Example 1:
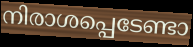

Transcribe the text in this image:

നിരാശപ്പെടേണ്ടാ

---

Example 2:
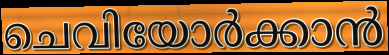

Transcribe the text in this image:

ചെവിയോർക്കാൻ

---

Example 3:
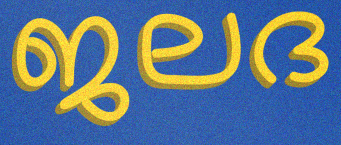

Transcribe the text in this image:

ജലദ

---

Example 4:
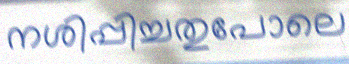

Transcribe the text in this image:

നശിപ്പിച്ചതുപോലെ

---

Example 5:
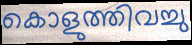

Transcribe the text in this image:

കൊളുത്തിവച്ചു